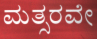
ಮತ್ಸರವೇ